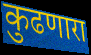
कुढणारा